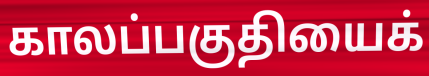
காலப்பகுதியைக்